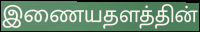
இணையதளத்தின்